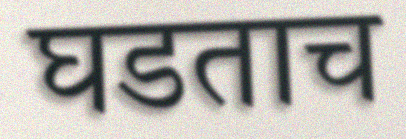
घडताच